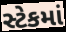
સ્ટેકમાં